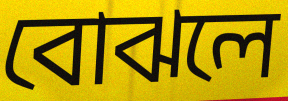
বোঝলে